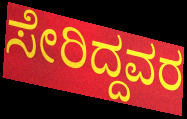
ಸೇರಿದ್ದವರ